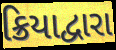
ક્રિયાદ્વારા